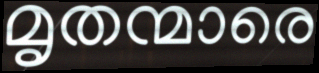
മൃതന്മാരെ